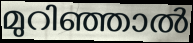
മുറിഞ്ഞാൽ